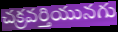
చక్రవర్తియునగు